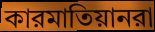
কারমাতিয়ানরা